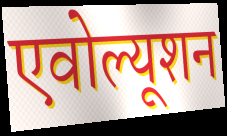
एवोल्यूशन